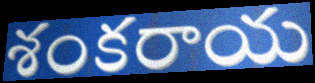
శంకరాయ